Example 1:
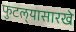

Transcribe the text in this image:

फुटल्यासारखे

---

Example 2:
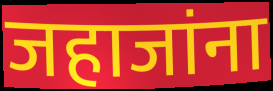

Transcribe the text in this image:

जहाजांना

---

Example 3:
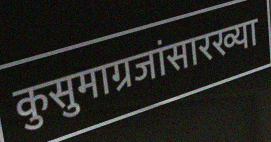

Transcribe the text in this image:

कुसुमाग्रजांसारख्या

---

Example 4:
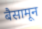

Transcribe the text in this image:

बैसामून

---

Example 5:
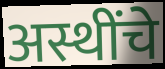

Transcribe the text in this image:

अस्थींचे